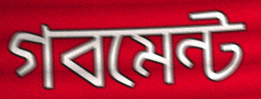
গবমেন্ট